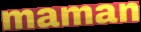
maman